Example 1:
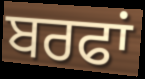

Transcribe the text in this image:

ਬਰਫਾਂ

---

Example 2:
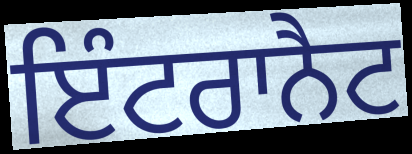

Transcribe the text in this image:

ਇੰਟਰਾਨੈਟ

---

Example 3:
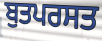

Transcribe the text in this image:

ਬੁਤਪਰਸਤ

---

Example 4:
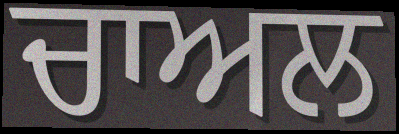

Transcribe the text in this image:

ਚਾਅਲ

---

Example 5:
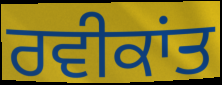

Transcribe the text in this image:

ਰਵੀਕਾਂਤ